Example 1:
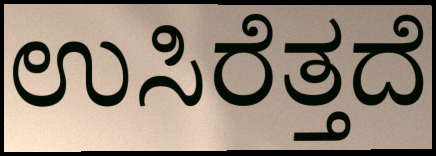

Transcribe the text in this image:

ಉಸಿರೆತ್ತದೆ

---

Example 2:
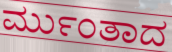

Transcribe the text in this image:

ರ್ಮುಂತಾದ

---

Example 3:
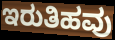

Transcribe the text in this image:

ಇರುತಿಹವು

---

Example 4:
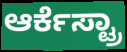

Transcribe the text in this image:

ಆರ್ಕೆಸ್ಟ್ರಾ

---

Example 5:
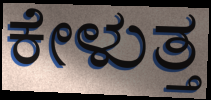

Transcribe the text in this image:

ಕೇಳುತ್ತ